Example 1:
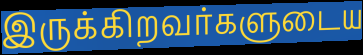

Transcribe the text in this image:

இருக்கிறவர்களுடைய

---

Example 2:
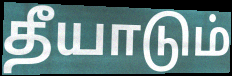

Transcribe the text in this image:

தீயாடும்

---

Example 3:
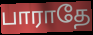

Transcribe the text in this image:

பாராதே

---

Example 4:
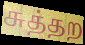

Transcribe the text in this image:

சுத்தற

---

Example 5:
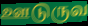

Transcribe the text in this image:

ஊடுருவ